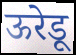
ऊरेडू